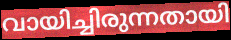
വായിച്ചിരുന്നതായി